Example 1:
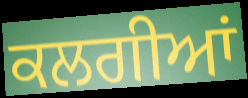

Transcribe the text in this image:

ਕਲਗੀਆਂ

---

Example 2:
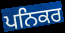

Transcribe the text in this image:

ਪਨਿਕਰ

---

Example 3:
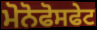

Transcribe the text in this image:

ਮੋਨੋਫੋਸਫੇਟ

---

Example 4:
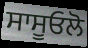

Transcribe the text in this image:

ਸਾਸੂਓਲੋ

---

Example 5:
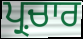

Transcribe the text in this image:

ਪ਼੍ਰਚਾਰ